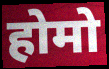
होमो